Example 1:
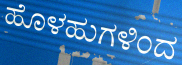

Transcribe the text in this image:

ಹೊಳಹುಗಳಿಂದ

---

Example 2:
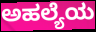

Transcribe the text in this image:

ಅಹಲ್ಯೆಯ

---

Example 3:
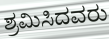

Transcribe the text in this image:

ಶ್ರಮಿಸಿದವರು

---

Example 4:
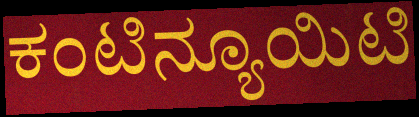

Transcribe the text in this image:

ಕಂಟಿನ್ಯೂಯಿಟಿ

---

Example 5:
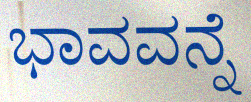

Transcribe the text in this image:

ಭಾವವನ್ನೆ